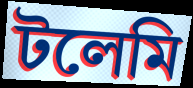
টলেমি